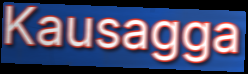
Kausagga